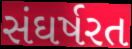
સંઘર્ષરત